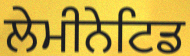
ਲੇਮੀਨੇਟਿਡ